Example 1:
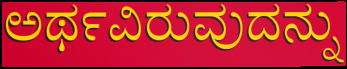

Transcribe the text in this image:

ಅರ್ಥವಿರುವುದನ್ನು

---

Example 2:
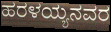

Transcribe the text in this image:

ಹರಳಯ್ಯನವರ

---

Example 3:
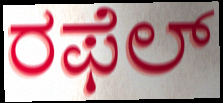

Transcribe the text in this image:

ರಫೆಲ್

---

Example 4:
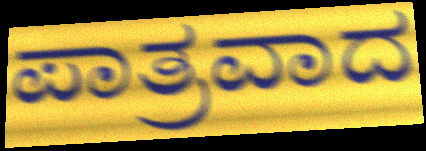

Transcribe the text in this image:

ಪಾತ್ರವಾದ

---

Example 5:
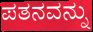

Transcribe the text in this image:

ಪತನವನ್ನು